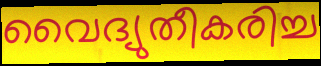
വൈദ്യുതീകരിച്ച